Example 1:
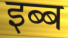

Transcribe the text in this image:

इब्ब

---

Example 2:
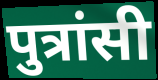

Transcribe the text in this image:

पुत्रांसी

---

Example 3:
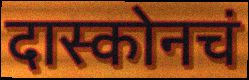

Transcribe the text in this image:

दास्कोनचं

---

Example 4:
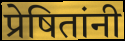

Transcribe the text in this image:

प्रेषितांनी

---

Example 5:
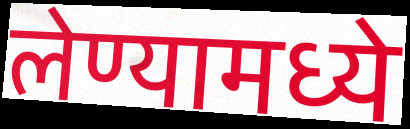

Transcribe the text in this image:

लेण्यामध्ये